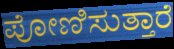
ಪೋಣಿಸುತ್ತಾರೆ